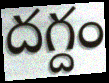
దగ్దం